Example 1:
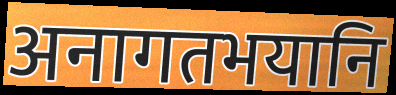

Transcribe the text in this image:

अनागतभयानि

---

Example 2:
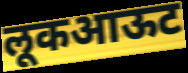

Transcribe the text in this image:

लूकआऊट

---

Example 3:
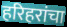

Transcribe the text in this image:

हरिहरांचा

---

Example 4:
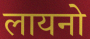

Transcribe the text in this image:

लायनो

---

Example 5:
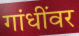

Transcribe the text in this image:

गांधींवर